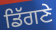
ਡਿੱਗਣੇ